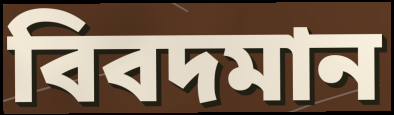
বিবদমান